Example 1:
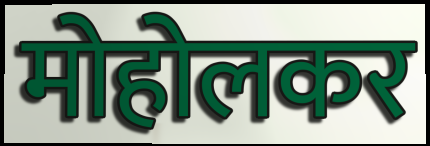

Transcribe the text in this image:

मोहोलकर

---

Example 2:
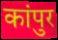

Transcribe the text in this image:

कांपुर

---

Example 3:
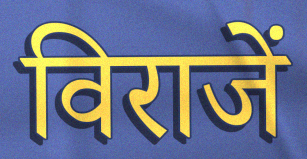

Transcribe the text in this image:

विराजें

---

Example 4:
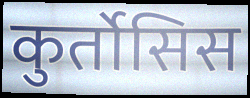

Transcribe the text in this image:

कुर्तोसिस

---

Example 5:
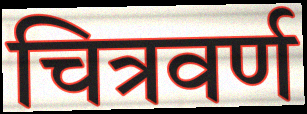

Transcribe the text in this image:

चित्रवर्ण